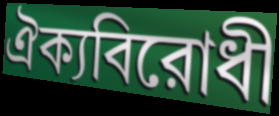
ঐক্যবিরোধী